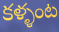
కళ్ళంట